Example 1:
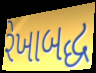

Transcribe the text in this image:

રેખાબદ્ધ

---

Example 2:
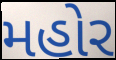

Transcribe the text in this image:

મહોર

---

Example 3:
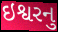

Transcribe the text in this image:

ઇશ્વરનુ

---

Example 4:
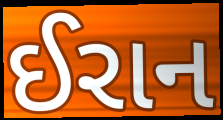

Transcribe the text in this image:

ઈરાન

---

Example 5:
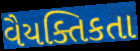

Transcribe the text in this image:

વૈયક્તિકતા